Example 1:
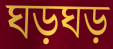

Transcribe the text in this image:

ঘড়ঘড়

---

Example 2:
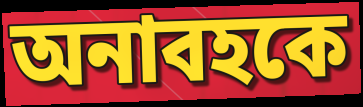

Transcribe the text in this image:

অনাবহকে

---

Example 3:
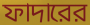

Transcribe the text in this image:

ফাদারের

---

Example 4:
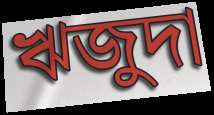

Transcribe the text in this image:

ঋজুদা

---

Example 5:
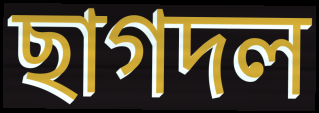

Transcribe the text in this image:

ছাগদল